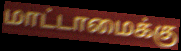
மாட்டாமைக்கு